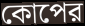
কোপের